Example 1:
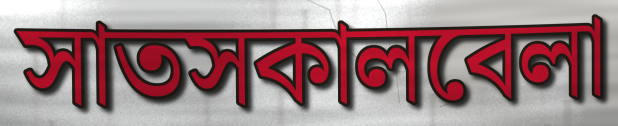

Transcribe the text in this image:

সাতসকালবেলা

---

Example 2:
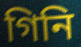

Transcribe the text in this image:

গিনি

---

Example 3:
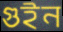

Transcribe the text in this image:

গুইন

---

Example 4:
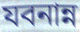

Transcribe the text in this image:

যবনান্ন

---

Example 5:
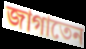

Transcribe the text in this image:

জাগাতেন